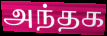
அந்தக